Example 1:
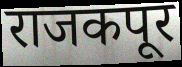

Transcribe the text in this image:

राजकपूर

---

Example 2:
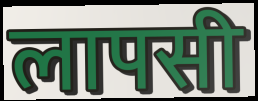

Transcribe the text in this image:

लापसी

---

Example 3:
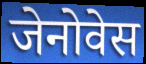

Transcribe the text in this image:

जेनोवेस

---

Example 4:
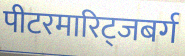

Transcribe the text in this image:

पीटरमारिट्जबर्ग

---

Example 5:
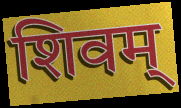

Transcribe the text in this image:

शिवम्